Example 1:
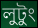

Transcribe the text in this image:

লুটুং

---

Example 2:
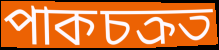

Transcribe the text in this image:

পাকচক্ৰত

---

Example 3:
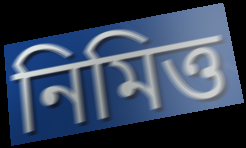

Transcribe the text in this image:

নিমিত্ত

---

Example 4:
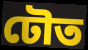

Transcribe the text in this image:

ঢৌত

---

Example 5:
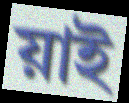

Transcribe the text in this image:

য়াই